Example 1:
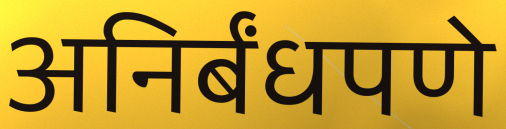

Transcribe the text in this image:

अनिर्बंधपणे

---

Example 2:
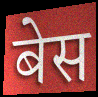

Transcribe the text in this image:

बेस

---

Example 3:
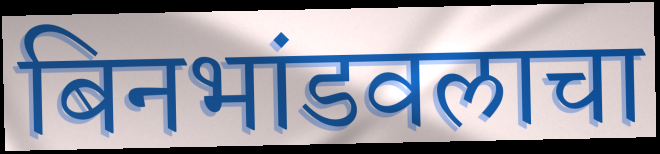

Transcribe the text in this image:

बिनभांडवलाचा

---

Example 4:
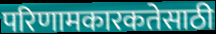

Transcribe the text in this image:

परिणामकारकतेसाठी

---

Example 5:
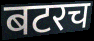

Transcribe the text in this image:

बटरच